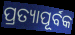
ପ୍ରତ୍ୟାପୂର୍ବକ